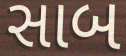
સાબ